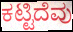
ಕಟ್ಟಿದೆವು